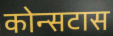
कोन्सटास